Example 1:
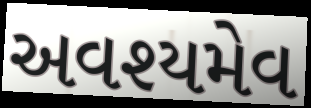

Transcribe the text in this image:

અવશ્યમેવ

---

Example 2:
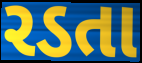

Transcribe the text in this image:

રડતા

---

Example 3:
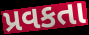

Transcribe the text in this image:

પ્રવકતા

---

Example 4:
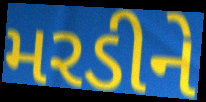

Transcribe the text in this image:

મરડીને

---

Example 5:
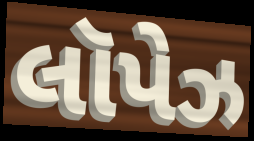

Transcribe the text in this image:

લૉપેઝ